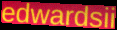
edwardsii